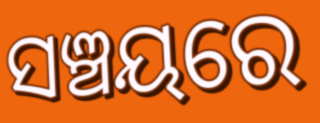
ସଞ୍ଚୟରେ